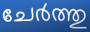
ചേർത്തു